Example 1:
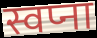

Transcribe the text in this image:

स्‍वप्‍ना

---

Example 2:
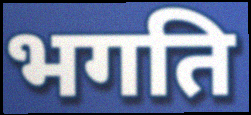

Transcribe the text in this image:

भगति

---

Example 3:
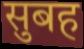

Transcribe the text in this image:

सुबह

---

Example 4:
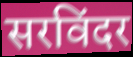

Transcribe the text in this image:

सरविंदर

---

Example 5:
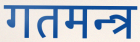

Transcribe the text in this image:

गतमन्त्र